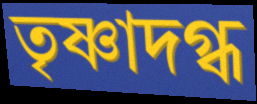
তৃষ্ণাদগ্ধ